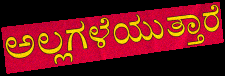
ಅಲ್ಲಗಳೆಯುತ್ತಾರೆ